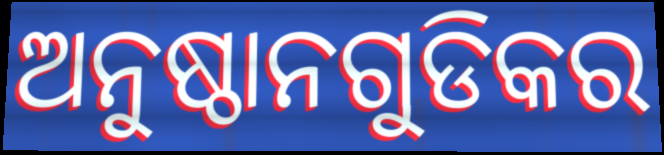
ଅନୁଷ୍ଠାନଗୁଡିକର